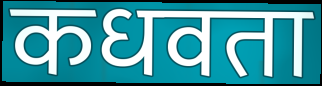
कधवता